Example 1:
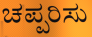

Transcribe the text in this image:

ಚಪ್ಪರಿಸು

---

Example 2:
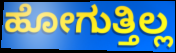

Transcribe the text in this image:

ಹೋಗುತ್ತಿಲ್ಲ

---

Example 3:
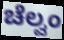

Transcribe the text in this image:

ಚೆಲ್ವಂ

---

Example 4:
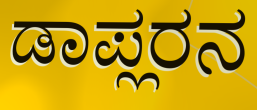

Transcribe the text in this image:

ಡಾಪ್ಲರನ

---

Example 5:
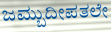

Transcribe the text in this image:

ಜಮ್ಬುದೀಪತಲೇ